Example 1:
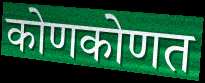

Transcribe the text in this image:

कोणकोणत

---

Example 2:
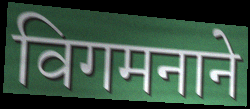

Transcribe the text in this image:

विगमनाने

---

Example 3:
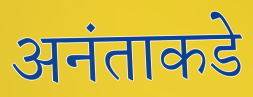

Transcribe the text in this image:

अनंताकडे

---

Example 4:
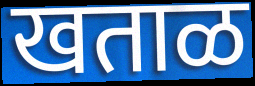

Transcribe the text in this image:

खताळ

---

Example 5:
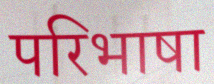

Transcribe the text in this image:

परिभाषा